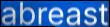
abreast